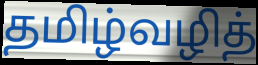
தமிழ்வழித்